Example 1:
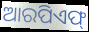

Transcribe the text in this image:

ଆରପିଏଫ୍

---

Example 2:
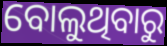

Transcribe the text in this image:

ବୋଲୁଥିବାରୁ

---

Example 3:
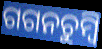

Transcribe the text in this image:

ଗଗନଚୁମ୍ବି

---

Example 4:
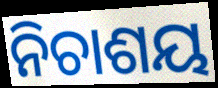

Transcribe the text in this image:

ନିଚାଶୟ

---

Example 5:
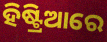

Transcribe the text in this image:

ହିଷ୍ଟ୍ରିଆରେ